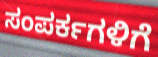
ಸಂಪರ್ಕಗಳಿಗೆ